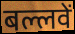
बल्लवें